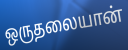
ஒருதலையான்